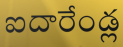
ఐదారేండ్ల